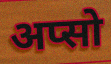
अप्सो